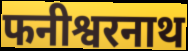
फनीश्वरनाथ